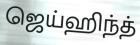
ஜெய்ஹிந்த்